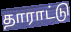
தாராட்டு